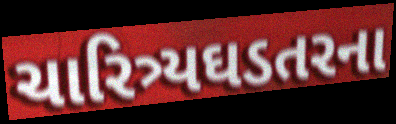
ચારિત્ર્યઘડતરના